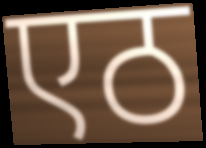
एठ